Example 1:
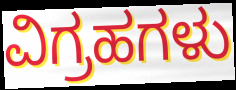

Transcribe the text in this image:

ವಿಗ್ರಹಗಳು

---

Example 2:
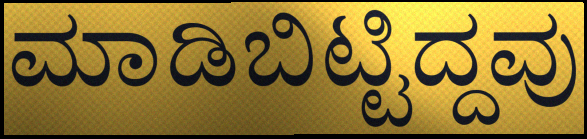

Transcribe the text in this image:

ಮಾಡಿಬಿಟ್ಟಿದ್ದವು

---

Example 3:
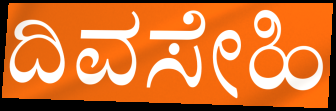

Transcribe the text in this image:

ದಿವಸೇಹಿ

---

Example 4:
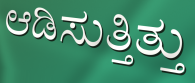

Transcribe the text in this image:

ಆಡಿಸುತ್ತಿತ್ತು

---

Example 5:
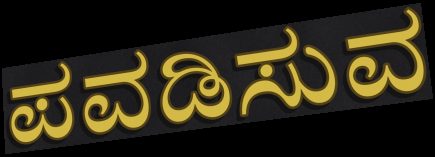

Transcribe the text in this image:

ಪವಡಿಸುವ